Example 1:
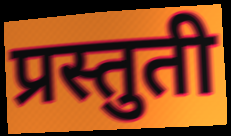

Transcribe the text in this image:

प्रस्तुती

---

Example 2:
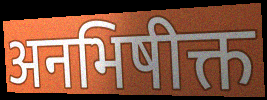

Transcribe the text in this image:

अनभिषीक्त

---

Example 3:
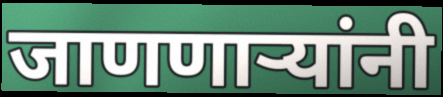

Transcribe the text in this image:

जाणणाऱ्यांनी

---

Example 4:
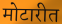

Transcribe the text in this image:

मोटारीत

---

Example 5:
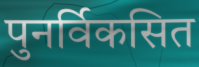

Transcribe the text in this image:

पुनर्विकसित